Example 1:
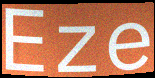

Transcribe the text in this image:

Eze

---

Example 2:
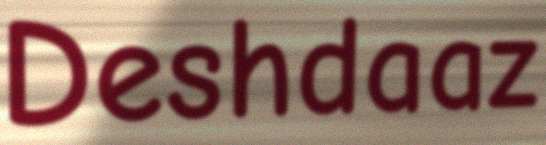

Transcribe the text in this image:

Deshdaaz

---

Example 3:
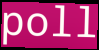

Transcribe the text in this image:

poll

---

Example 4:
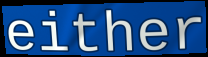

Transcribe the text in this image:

either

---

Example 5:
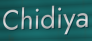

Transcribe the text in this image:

Chidiya